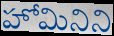
హోమినిని